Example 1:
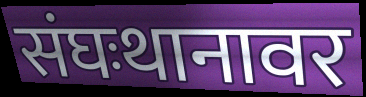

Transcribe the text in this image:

संघःथानावर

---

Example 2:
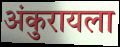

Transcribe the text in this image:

अंकुरायला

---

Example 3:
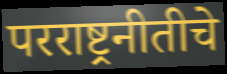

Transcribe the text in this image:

परराष्ट्रनीतीचे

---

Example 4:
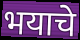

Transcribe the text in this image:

भयाचे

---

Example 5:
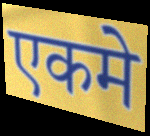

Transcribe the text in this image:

एकमे